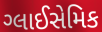
ગ્લાઈસેમિક